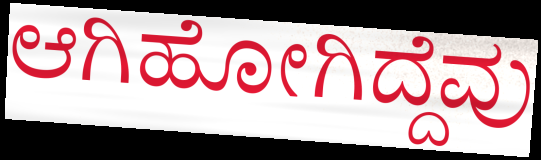
ಆಗಿಹೋಗಿದ್ದೆವು